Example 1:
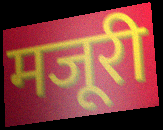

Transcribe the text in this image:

मजूरी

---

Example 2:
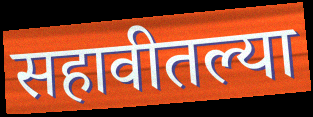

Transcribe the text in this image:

सहावीतल्या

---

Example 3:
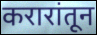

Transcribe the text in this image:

करारांतून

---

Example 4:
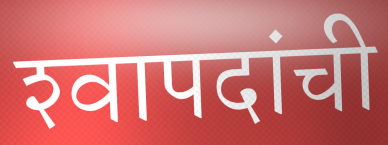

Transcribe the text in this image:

श्वापदांची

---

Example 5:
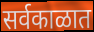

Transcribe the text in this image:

सर्वकाळात